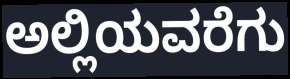
ಅಲ್ಲಿಯವರೆಗು